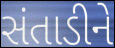
સંતાડીને